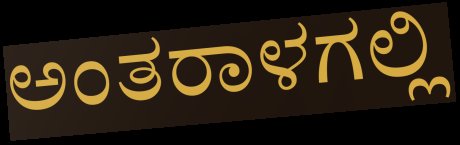
ಅಂತರಾಳಗಲ್ಲಿ